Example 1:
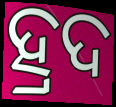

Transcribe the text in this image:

ହ୍ରଦ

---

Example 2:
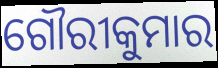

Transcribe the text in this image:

ଗୌରୀକୁମାର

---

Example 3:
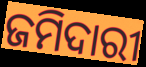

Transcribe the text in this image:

ଜମିଦାରୀ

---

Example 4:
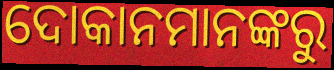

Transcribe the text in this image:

ଦୋକାନମାନଙ୍କରୁ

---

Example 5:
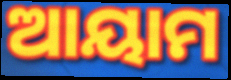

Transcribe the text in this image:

ଆୟାମ